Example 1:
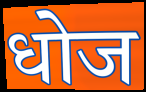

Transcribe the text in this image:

धोज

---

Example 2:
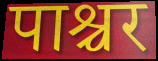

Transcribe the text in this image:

पाश्चर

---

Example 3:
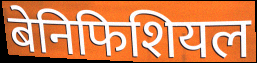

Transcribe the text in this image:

बेनिफिशियल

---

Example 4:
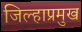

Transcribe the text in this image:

जिल्हाप्रमुख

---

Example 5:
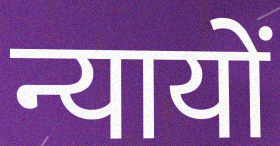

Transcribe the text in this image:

न्यायों